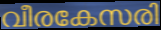
വീരകേസരി